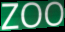
ZOO